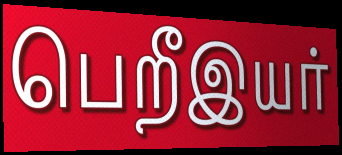
பெறீஇயர்